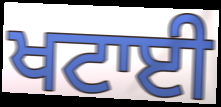
ਖਟਾਈ